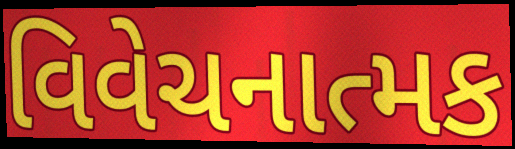
વિવેચનાત્મક